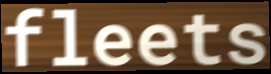
fleets